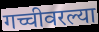
गच्चीवरल्या